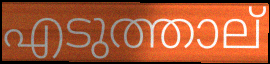
എടുത്താല്